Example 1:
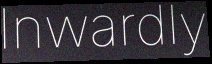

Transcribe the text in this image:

Inwardly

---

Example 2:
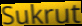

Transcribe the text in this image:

Sukrut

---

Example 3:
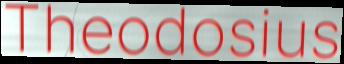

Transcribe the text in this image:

Theodosius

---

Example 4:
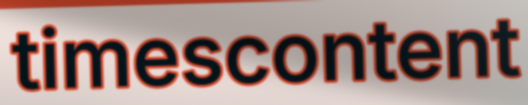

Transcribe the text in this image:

timescontent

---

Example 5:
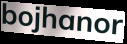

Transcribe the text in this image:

bojhanor